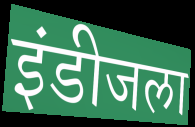
इंडीजला